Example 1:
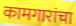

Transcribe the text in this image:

कामगारांचा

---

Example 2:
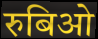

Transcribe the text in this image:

रुबिओ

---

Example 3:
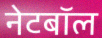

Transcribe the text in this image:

नेटबॉल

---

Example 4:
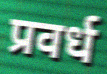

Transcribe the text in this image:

प्रवर्ध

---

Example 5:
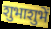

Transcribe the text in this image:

शुभाशुभें